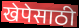
खेपेसाठी